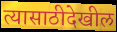
त्यासाठीदेखील